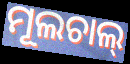
ମୂଲଚାଲ୍